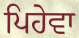
ਪਿਹੇਵਾ